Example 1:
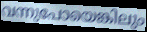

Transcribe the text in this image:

വന്നുപോയെങ്കിലും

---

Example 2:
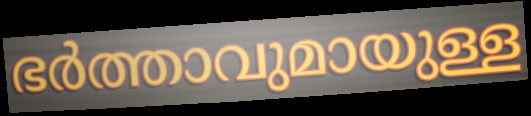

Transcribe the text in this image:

ഭർത്താവുമായുള്ള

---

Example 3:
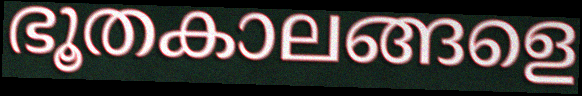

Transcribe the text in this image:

ഭൂതകാലങ്ങളെ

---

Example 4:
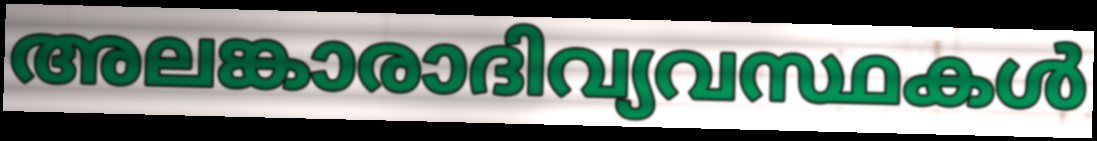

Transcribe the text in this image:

അലങ്കാരാദിവ്യവസ്ഥകൾ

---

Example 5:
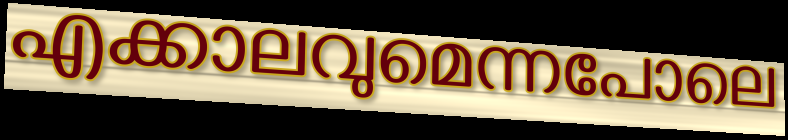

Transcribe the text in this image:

എക്കാലവുമെന്നപോലെ